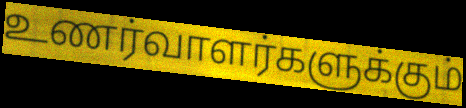
உணர்வாளர்களுக்கும்